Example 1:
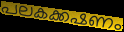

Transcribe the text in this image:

പലകക്കഷണം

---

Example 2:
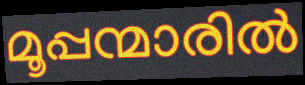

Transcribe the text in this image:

മൂപ്പന്മാരിൽ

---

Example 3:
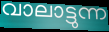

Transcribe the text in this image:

വാലാട്ടുന്ന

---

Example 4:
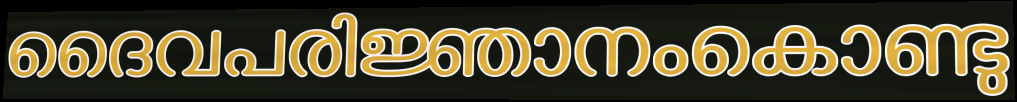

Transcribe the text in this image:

ദൈവപരിജ്ഞാനംകൊണ്ടു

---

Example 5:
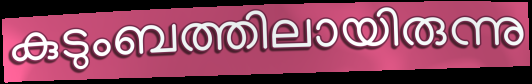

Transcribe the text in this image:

കുടുംബത്തിലായിരുന്നു